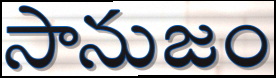
సానుజం